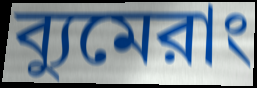
ব্যুমেরাং